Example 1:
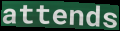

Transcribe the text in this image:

attends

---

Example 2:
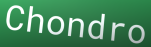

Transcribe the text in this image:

Chondro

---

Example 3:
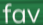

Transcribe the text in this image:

fav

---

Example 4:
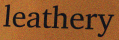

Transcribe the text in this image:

leathery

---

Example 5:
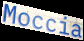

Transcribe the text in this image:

Moccia